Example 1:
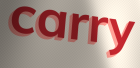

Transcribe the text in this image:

carry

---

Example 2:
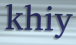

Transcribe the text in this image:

khiy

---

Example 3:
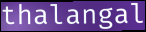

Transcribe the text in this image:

thalangal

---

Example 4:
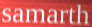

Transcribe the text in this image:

samarth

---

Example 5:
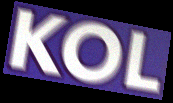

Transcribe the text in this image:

KOL